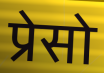
प्रेसो